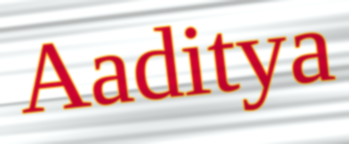
Aaditya